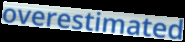
overestimated